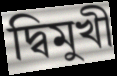
দ্বিমুখী